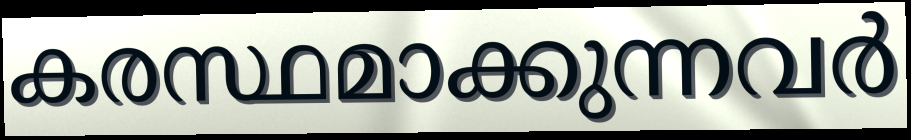
കരസ്ഥമാക്കുന്നവർ